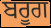
ਬਰੂਗ